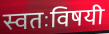
स्वतःविषयी